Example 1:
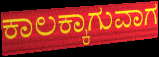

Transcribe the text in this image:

ಕಾಲಕ್ಕಾಗುವಾಗ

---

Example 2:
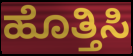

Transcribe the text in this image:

ಹೊತ್ತಿಸಿ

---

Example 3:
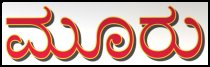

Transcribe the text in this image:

ಮೂರು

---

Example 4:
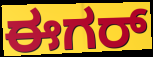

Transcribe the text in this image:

ಈಗರ್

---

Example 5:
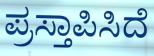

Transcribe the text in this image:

ಪ್ರಸ್ತಾಪಿಸಿದೆ